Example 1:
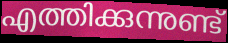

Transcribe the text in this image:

എത്തിക്കുന്നുണ്ട്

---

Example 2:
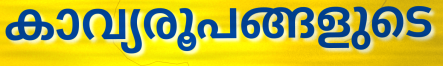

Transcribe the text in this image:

കാവ്യരൂപങ്ങളുടെ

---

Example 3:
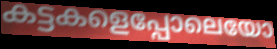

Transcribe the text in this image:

കട്ടകളെപ്പോലെയോ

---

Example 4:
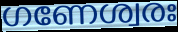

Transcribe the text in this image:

ഗണേശ്വരഃ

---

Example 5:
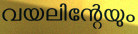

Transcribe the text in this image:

വയലിന്റേയും